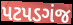
પટપડગંજ